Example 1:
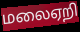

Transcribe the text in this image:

மலைஏறி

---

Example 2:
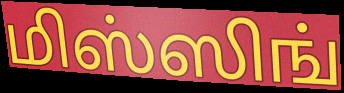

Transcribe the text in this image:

மிஸ்ஸிங்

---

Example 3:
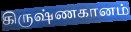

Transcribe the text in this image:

கிருஷ்ணகானம்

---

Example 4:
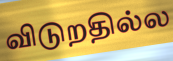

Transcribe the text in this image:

விடுறதில்ல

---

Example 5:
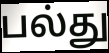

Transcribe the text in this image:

பல்து